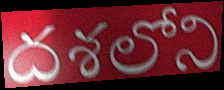
దశలోని